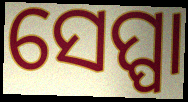
ସେପ୍ପା